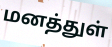
மனத்துள்